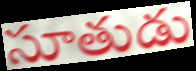
సూతుడు